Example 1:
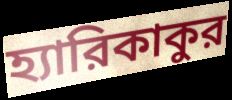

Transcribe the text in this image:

হ্যারিকাকুর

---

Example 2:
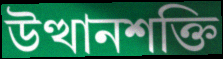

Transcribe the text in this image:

উত্থানশক্তি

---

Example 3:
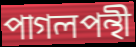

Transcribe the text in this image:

পাগলপন্থী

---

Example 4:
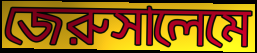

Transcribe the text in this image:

জেরুসালেমে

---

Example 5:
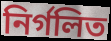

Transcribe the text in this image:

নির্গলিত